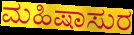
ಮಹಿಷಾಸುರ